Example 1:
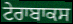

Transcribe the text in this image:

ਟੇਰਾਬਾਕਸ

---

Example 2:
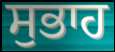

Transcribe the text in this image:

ਸੁਭਾਹ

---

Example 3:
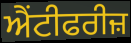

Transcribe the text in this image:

ਐਂਟੀਫਰੀਜ਼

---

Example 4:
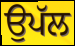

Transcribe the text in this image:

ਉਪੱਲ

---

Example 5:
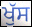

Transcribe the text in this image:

ਖੁੱਸ